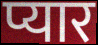
प्यार